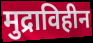
मुद्राविहीन